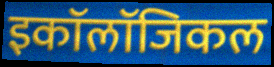
इकॉलॉजिकल